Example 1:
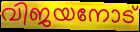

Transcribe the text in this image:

വിജയനോട്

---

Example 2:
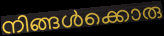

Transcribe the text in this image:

നിങ്ങൾക്കൊരു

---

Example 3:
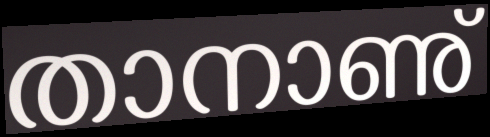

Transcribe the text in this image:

താനാണു്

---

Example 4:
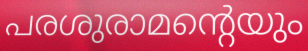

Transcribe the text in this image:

പരശുരാമന്റെയും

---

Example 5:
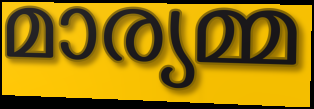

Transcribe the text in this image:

മാര്യമ്മ